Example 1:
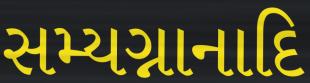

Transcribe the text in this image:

સમ્યગ્નાનાદિ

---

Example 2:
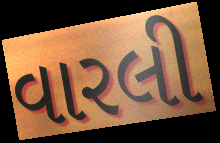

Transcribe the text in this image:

વારલી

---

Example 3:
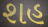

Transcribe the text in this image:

શહ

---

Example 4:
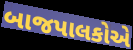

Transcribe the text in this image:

બાજપાલકોએ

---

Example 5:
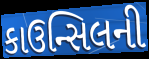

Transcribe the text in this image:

કાઉન્સિલની